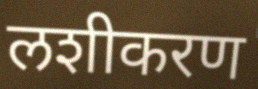
लशीकरण